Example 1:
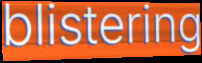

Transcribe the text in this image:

blistering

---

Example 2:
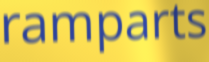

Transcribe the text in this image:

ramparts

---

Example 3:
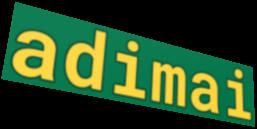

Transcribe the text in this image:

adimai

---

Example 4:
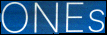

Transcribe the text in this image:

ONEs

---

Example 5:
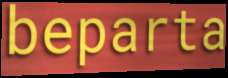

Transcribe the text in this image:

beparta